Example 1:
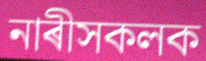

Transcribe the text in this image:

নাৰীসকলক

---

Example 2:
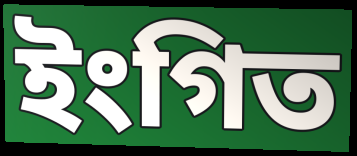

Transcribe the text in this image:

ইংগিত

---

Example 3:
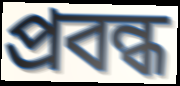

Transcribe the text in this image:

প্ৰবন্ধ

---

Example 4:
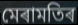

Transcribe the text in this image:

মেৰামতিৰ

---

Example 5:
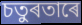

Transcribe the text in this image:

চতুৰতাৰে